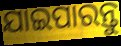
ଯାଇପାରନ୍ତୁ